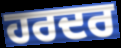
ਹਰਦਰ